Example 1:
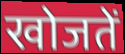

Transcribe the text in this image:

खोजतें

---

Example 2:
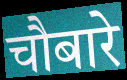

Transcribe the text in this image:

चौबारे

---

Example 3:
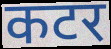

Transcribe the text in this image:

कटर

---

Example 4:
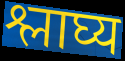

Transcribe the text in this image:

श्लाघ्य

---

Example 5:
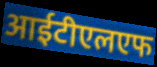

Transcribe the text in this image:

आईटीएलएफ